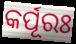
କର୍ପୂରଃ